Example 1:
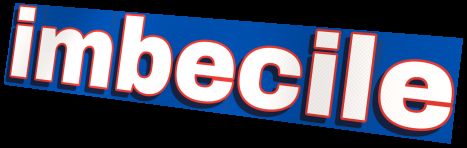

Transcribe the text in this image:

imbecile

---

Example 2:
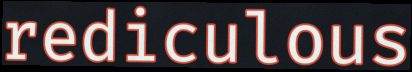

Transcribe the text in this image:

rediculous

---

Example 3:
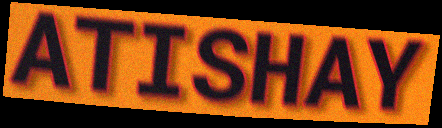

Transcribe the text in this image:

ATISHAY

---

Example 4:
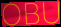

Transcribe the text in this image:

OBU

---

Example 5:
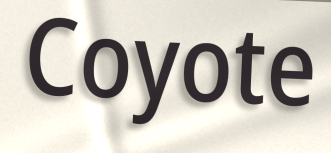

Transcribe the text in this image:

Coyote